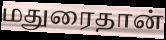
மதுரைதான்